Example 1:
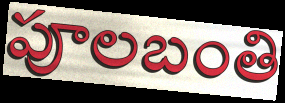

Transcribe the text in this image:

పూలబంతి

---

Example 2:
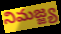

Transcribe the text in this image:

నిమజ్జ్య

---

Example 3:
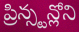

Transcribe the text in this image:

ప్రిన్స్టన్లోని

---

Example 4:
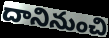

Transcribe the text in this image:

దానినుంచి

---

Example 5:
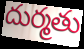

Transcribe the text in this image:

దుర్మతు